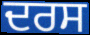
ਦਰਸ